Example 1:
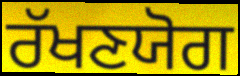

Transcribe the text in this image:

ਰੱਖਣਯੋਗ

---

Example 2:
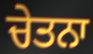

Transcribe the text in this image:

ਚੇਤਨਾ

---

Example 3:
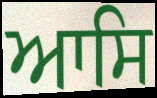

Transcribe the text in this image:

ਆਸਿ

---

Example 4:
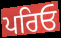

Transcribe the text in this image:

ਪਰਿਓ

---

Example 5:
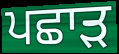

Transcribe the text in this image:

ਪਛਾੜ